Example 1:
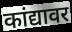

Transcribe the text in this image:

कांद्यावर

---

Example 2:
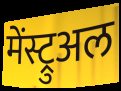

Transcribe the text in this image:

मेंस्ट्रुअल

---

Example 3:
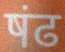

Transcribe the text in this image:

षंढ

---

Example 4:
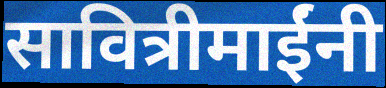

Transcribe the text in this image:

सावित्रीमाईंनी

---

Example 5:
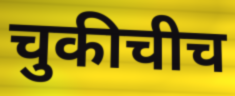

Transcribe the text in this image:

चुकीचीच